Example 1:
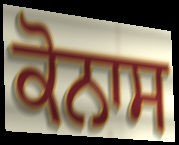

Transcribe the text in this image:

ਕੋਨਾਸ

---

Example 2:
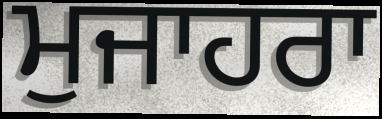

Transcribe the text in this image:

ਮੁਜਾਹਰਾ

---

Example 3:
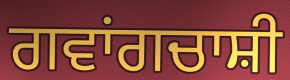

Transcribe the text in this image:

ਗਵਾਂਗਚਾਸ਼ੀ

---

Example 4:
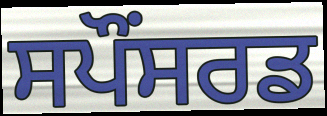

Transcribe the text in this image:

ਸਪੌਂਸਰਡ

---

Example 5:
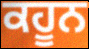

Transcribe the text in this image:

ਕਹੂਨ